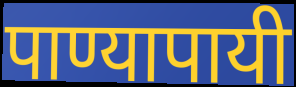
पाण्यापायी